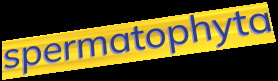
spermatophyta